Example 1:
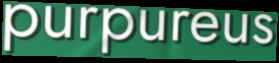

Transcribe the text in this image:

purpureus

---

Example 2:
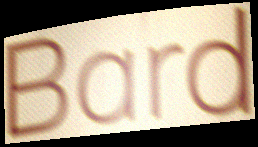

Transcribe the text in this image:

Bard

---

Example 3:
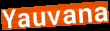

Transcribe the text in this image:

Yauvana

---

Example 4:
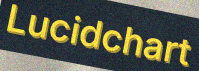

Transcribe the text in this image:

Lucidchart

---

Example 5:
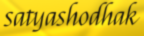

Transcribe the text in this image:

satyashodhak